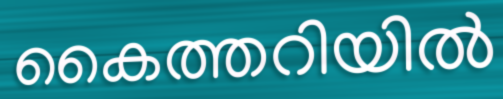
കൈത്തറിയിൽ